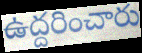
ఉద్దరించారు